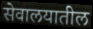
सेवालयातील